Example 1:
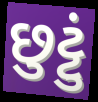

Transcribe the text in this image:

છુટ્ટું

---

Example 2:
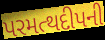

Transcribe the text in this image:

પરમત્થદીપની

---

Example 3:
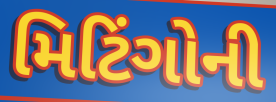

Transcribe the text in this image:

મિટિંગોની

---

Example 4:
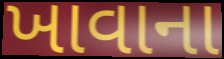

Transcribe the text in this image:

ખાવાના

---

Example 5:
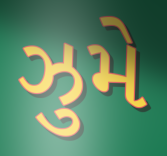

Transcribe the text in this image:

ઝુમે